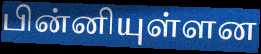
பின்னியுள்ளன